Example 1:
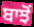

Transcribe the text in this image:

ਬਾਝੋਂ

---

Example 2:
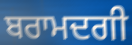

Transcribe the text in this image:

ਬਰਾਮਦਗੀ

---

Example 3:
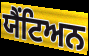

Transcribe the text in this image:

ਯੈਂਟਿਅਨ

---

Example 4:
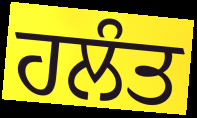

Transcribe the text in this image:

ਹਲੰਤ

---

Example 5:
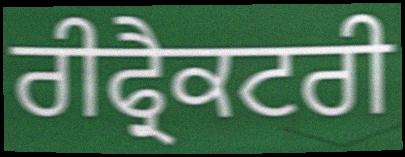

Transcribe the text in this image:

ਰੀਫ੍ਰੈਕਟਰੀ